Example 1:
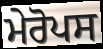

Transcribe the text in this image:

ਮੇਰੋਪਸ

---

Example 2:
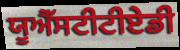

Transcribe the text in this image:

ਯੂਐੱਸਟੀਟੀਏਡੀ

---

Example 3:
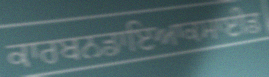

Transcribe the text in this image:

ਕਾਰਬਨਡਾਇਆਕਸਾਈਡ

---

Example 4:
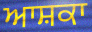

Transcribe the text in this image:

ਆਸ਼ਕਾ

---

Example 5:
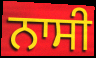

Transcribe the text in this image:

ਨਾਸੀ